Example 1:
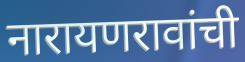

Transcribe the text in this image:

नारायणरावांची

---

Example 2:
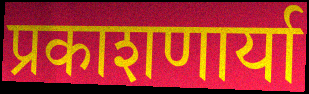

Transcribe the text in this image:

प्रकाशणार्या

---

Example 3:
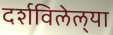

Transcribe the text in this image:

दर्शविलेल्या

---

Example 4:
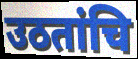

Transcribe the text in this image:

उठतांचि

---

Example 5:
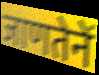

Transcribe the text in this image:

जाणतेनें